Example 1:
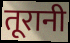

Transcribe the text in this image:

तूरानी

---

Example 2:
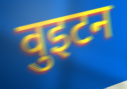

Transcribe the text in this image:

वुइटन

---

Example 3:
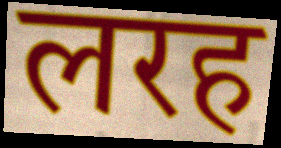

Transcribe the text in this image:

लरह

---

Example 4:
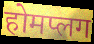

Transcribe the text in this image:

होमप्लग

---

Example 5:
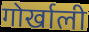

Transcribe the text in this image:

गोर्खाली